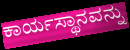
ಕಾರ್ಯಸ್ಥಾನವನ್ನು